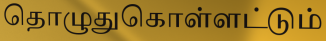
தொழுதுகொள்ளட்டும்